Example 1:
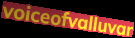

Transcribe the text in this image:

voiceofvalluvar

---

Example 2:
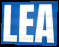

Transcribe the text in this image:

LEA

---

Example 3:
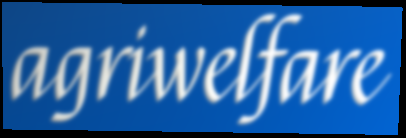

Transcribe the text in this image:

agriwelfare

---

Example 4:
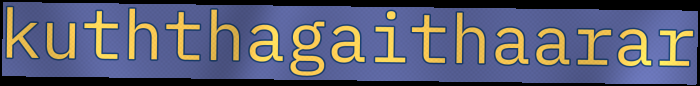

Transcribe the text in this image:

kuththagaithaarar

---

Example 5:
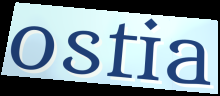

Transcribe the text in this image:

ostia